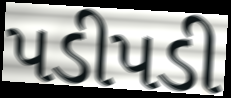
પડીપડી